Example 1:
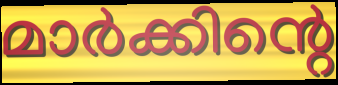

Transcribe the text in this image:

മാർക്കിന്റെ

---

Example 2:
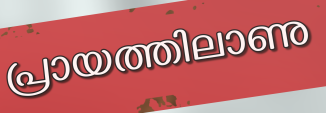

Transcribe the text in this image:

പ്രായത്തിലാണു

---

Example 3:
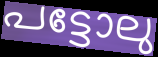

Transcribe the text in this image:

പട്ടോലു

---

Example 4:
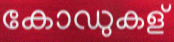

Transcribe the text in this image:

കോഡുകള്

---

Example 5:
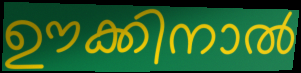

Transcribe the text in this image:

ഊക്കിനാൽ